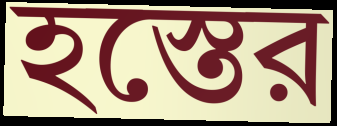
হস্তের